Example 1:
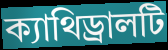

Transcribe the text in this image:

ক্যাথিড্রালটি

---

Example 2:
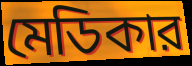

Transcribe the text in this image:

মেডিকার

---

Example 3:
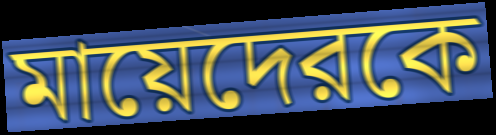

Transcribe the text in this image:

মায়েদেরকে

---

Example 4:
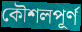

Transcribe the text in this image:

কৌশলপূর্ণ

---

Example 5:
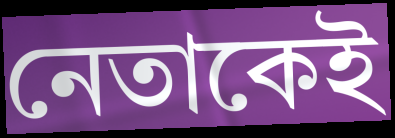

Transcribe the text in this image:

নেতাকেই